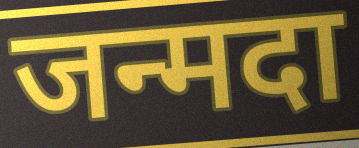
जन्मदा